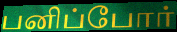
பனிப்போர்